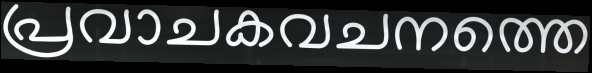
പ്രവാചകവചനത്തെ